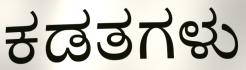
ಕಡತಗಳು